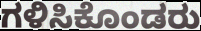
ಗಳಿಸಿಕೊಂಡರು